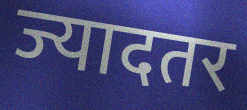
ज्यादतर